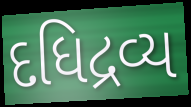
દધિદ્રવ્ય